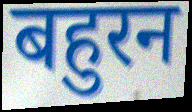
बहुरन